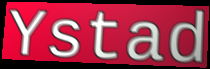
Ystad